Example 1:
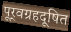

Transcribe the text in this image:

पूर्वग्रहदूषित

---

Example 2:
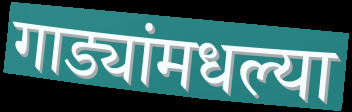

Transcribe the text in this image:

गाड्यांमधल्या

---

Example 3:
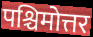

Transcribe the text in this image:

पश्चिमोत्तर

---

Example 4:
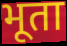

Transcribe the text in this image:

भूता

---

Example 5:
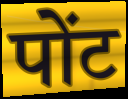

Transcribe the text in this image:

पोंट